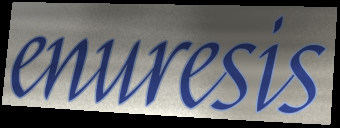
enuresis